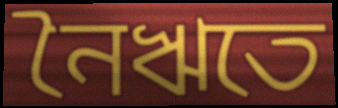
নৈঋতে